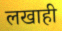
लखाही